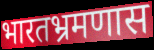
भारतभ्रमणास